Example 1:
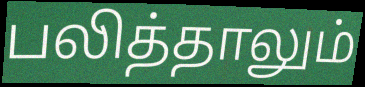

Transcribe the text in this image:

பலித்தாலும்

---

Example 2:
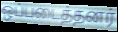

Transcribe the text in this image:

ஒப்படைத்தனர்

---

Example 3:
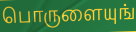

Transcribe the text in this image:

பொருளையுங்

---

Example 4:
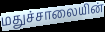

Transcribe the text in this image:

மதுச்சாலையின்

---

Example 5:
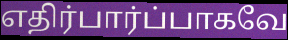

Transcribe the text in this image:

எதிர்பார்ப்பாகவே